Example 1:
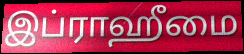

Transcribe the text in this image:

இப்ராஹீமை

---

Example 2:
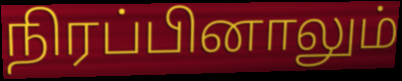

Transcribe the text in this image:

நிரப்பினாலும்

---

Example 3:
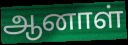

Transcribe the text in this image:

ஆனாள்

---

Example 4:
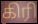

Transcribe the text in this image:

கிரி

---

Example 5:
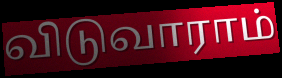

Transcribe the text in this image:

விடுவாராம்